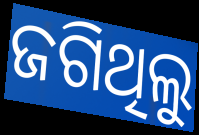
ଜଗିଥିଲୁ